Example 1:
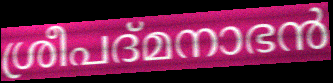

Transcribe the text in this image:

ശ്രീപദ്മനാഭൻ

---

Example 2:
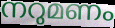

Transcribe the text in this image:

നറുമണം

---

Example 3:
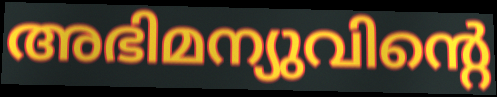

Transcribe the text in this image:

അഭിമന്യുവിന്റെ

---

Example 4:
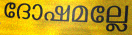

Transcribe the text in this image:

ദോഷമല്ലേ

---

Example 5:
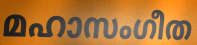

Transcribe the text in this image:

മഹാസംഗീത